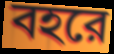
বহরে